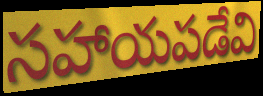
సహాయపడేవి